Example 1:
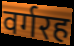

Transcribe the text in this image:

वर्गरह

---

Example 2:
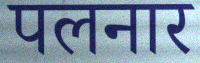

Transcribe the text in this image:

पलनार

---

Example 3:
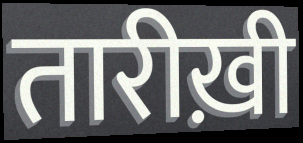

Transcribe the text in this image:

तारीख़ी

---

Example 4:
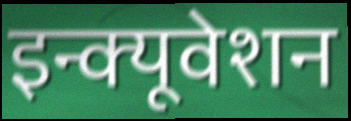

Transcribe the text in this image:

इन्क्यूवेशन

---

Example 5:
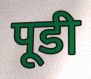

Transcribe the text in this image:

पूडी